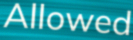
Allowed